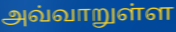
அவ்வாறுள்ள